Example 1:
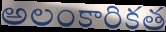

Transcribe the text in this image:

అలంకారికత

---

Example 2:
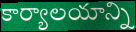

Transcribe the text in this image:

కార్యాలయాన్ని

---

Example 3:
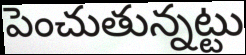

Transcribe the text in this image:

పెంచుతున్నట్టు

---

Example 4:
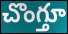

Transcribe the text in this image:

చొంగ్తూ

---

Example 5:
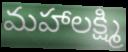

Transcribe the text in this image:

మహాలక్ష్మి